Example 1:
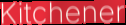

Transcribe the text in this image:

Kitchener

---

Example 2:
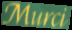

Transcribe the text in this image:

Murci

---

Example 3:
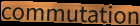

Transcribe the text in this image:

commutation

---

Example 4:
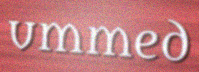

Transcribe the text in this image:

ummed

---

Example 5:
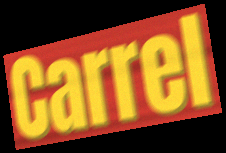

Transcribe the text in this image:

Carrel